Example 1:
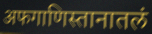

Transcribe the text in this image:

अफगाणिस्तानातलं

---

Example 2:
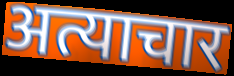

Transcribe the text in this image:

अत्याचार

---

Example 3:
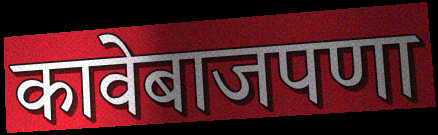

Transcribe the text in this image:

कावेबाजपणा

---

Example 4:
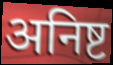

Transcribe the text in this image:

अनिष्ट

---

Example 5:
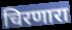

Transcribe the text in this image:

चिरणारा